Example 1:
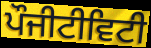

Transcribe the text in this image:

ਪੌਜੀਟੀਵਿਟੀ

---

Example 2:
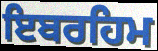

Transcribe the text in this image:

ਇਬਰਹਿਮ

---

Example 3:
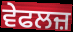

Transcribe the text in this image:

ਵੇਫਲਜ਼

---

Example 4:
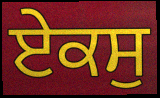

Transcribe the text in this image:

ਏਕਸੁ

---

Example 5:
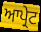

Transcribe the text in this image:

ਆਪ੍ਰੇਟ